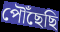
পৌঁছেছি